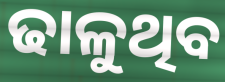
ଢାଳୁଥିବ